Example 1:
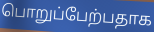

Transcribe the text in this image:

பொறுப்பேற்பதாக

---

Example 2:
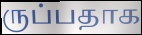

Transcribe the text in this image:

ருப்பதாக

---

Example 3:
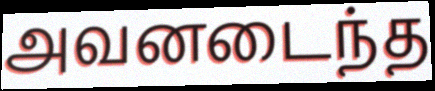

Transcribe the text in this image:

அவனடைந்த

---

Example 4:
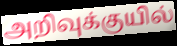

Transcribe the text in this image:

அறிவுக்குயில்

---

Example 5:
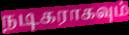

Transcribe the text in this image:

நடிகராகவும்